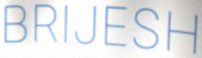
BRIJESH